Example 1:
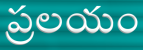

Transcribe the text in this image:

ప్రలయం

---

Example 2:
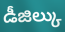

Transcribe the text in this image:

డీజిల్కు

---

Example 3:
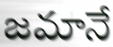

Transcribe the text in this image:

జమానే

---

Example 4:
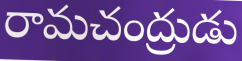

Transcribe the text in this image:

రామచంద్రుడు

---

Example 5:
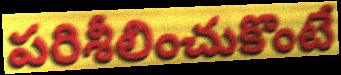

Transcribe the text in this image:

పరిశీలించుకొంటే